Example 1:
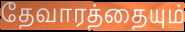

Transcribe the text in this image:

தேவாரத்தையும்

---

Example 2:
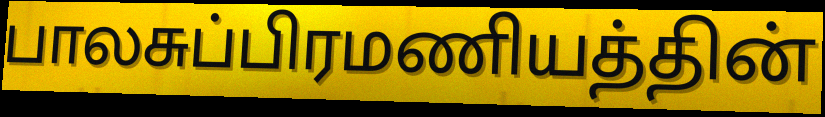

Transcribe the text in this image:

பாலசுப்பிரமணியத்தின்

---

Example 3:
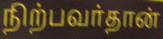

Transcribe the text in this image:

நிற்பவர்தான்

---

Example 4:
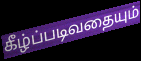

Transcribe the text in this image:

கீழ்ப்படிவதையும்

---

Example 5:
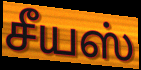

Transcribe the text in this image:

சீயஸ்